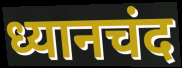
ध्यानचंद